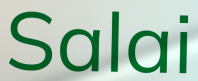
Salai